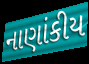
નાણાંકીય